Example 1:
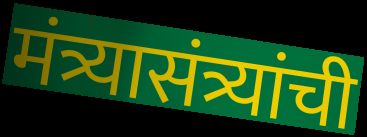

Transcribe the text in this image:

मंत्र्यासंत्र्यांची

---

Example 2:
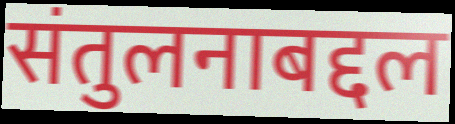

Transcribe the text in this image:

संतुलनाबद्दल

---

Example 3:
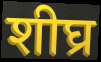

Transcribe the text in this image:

शीघ्र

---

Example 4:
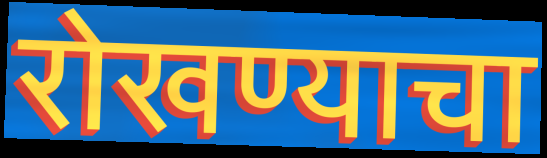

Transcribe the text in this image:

रोखण्याचा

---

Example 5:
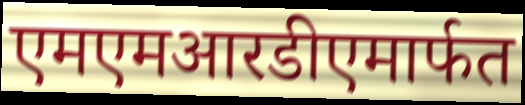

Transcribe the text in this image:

एमएमआरडीएमार्फत